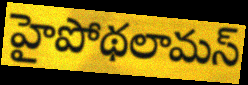
హైపోథలామస్